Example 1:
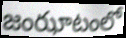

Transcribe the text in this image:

జంఝాటంలో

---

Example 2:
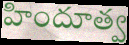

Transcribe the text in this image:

హిందూత్వ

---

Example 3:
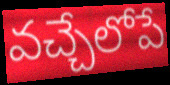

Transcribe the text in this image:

వచ్చేలోపే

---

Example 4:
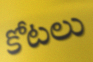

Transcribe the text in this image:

కోటలు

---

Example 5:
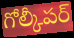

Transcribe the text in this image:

గోల్కీపర్